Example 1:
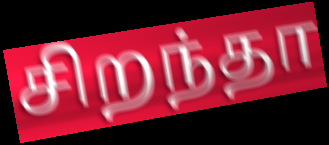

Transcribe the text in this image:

சிறந்தா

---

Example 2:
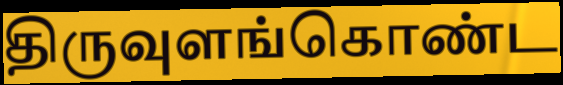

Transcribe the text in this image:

திருவுளங்கொண்ட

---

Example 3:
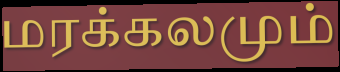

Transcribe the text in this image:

மரக்கலமும்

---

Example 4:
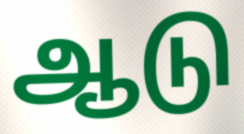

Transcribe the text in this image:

ஆடு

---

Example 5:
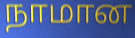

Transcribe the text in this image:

நாமான